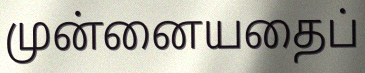
முன்னையதைப்